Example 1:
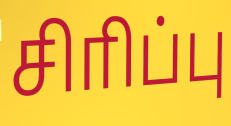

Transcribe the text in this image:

சிரிப்பு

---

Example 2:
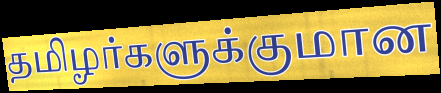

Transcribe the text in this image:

தமிழர்களுக்குமான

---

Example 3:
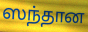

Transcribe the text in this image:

ஸந்தான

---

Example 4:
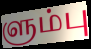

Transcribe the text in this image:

ளும்பு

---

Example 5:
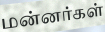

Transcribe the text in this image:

மன்னர்கள்